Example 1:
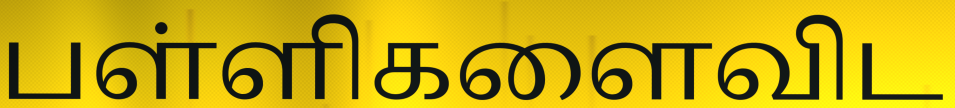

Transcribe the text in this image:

பள்ளிகளைவிட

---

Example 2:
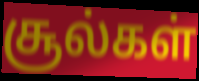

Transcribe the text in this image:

சூல்கள்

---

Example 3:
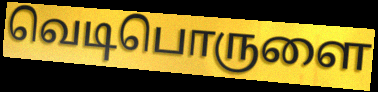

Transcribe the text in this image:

வெடிபொருளை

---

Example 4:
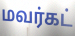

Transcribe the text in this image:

மவர்கட்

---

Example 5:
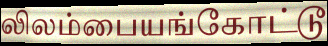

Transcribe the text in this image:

லிலம்பையங்கோட்டூ